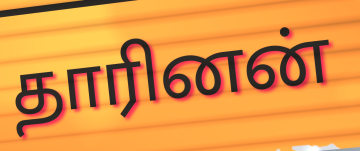
தாரினன்